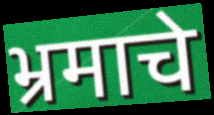
भ्रमाचे